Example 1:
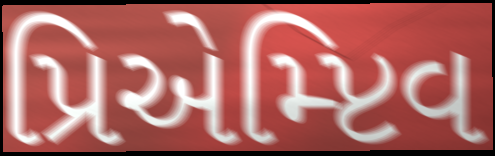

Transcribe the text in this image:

પ્રિએમ્પ્ટિવ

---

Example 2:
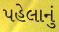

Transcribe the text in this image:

પહેલાનું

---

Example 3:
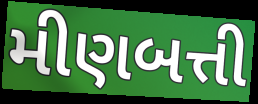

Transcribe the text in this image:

મીણબત્તી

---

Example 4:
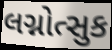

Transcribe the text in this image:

લગ્નોત્સુક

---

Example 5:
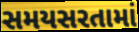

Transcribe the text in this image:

સમયસરતામાં